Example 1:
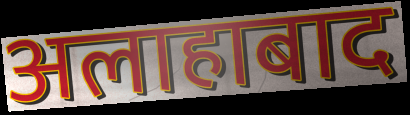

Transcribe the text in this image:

अलाहाबाद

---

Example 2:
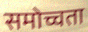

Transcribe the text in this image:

समोच्चता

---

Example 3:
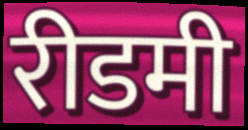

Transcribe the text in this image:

रीडमी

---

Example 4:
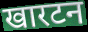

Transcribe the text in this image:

खारटन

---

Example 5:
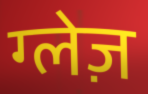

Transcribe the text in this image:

ग्लेज़